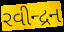
રવીન્દ્રન